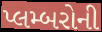
પ્લમ્બરોની